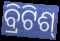
ବ୍ରିଟିଶ୍